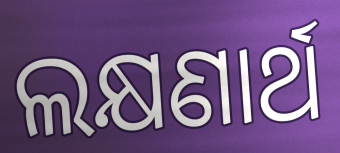
ଲକ୍ଷଣାର୍ଥ